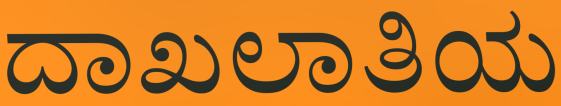
ದಾಖಲಾತಿಯ